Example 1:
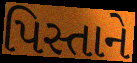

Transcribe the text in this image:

પિસ્તાને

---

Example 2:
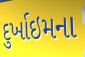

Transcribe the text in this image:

દુર્ખાઇમના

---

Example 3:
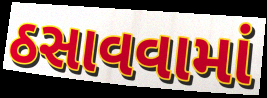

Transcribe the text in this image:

ઠસાવવામાં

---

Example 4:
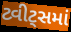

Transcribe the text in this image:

ટ્વીટ્સમાં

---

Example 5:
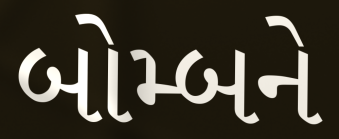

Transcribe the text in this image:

બોમ્બને